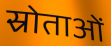
स्रोताओं